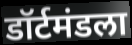
डॉर्टमंडला